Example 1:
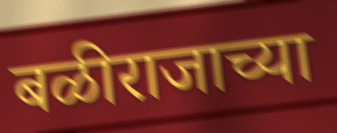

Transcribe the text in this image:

बळीराजाच्या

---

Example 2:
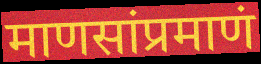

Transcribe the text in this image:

माणसांप्रमाणं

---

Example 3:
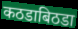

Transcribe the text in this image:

कठडाबिठडा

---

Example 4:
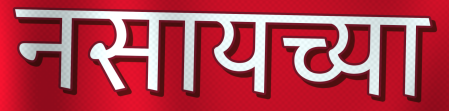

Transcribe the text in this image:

नसायच्या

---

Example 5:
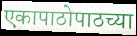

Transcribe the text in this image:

एकापाठोपाठच्या